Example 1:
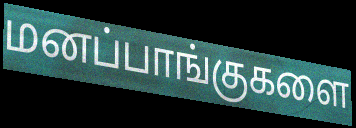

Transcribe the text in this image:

மனப்பாங்குகளை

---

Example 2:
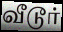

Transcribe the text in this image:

வீடூர்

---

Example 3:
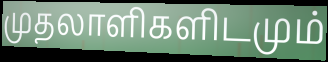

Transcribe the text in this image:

முதலாளிகளிடமும்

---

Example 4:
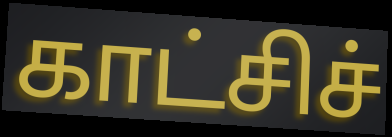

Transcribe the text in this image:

காட்சிச்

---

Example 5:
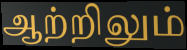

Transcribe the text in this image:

ஆற்றிலும்